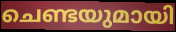
ചെണ്ടയുമായി